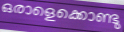
ഒരാളെക്കൊണ്ടു